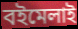
বইমেলাই